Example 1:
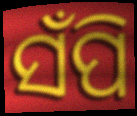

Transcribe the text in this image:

ସଁପି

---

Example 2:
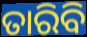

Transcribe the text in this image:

ତାରିବି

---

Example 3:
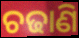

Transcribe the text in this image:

ଚଢାଣି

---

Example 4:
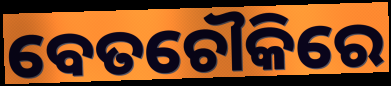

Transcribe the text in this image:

ବେତଚୌକିରେ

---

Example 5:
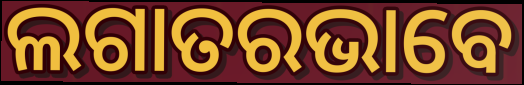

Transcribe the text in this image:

ଲଗାତରଭାବେ